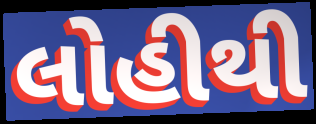
લોહીથી